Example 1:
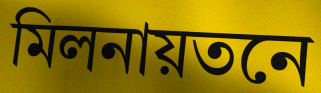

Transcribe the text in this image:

মিলনায়তনে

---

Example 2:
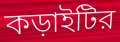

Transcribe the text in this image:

কড়াইটির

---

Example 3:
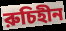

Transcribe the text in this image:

রুচিহীন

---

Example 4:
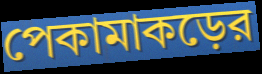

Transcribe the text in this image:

পেকামাকড়ের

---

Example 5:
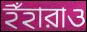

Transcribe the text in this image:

ইঁহারাও